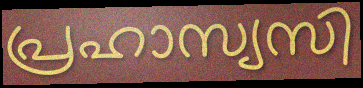
പ്രഹാസ്യസി